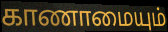
காணாமையும்